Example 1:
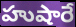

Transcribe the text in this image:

హుషారే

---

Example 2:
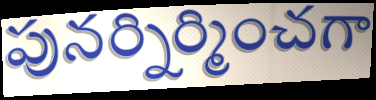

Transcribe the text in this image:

పునర్నిర్మించగా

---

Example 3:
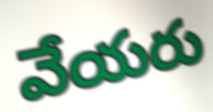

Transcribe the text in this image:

వేయరు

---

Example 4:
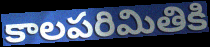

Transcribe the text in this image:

కాలపరిమితికి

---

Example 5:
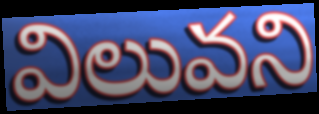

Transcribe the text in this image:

విలువని